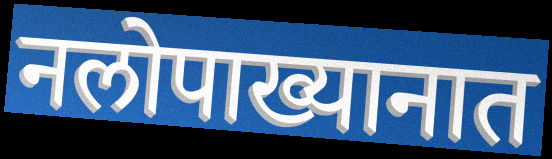
नलोपाख्यानात